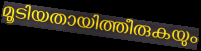
മൂടിയതായിത്തീരുകയും